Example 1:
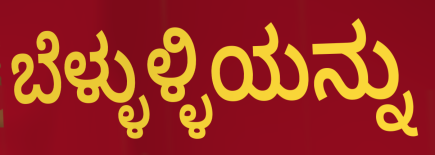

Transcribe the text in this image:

ಬೆಳ್ಳುಳ್ಳಿಯನ್ನು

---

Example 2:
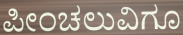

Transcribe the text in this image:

ಪೀಂಚಲುವಿಗೂ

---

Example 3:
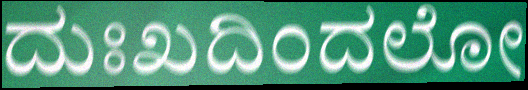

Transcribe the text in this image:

ದುಃಖದಿಂದಲೋ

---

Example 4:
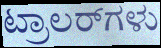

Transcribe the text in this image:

ಟ್ರಾಲರ್‌ಗಳು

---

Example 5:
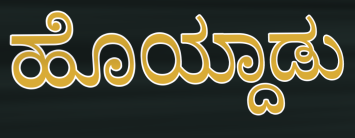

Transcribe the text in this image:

ಹೊಯ್ದಾಡು